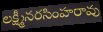
లక్ష్మీనరసింహరావు